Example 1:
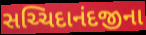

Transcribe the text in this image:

સચ્ચિદાનંદજીના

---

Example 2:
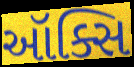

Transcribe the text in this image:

ઑક્સિ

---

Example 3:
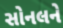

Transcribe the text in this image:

સોનલને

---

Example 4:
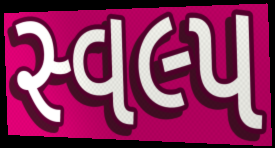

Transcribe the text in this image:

સ્વલ્પ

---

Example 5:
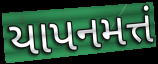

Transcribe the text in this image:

યાપનમત્તં